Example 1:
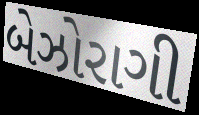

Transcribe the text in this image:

બેઝોરાગી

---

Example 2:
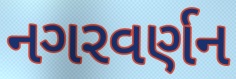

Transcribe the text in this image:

નગરવર્ણન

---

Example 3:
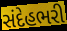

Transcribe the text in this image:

સંદેહભરી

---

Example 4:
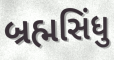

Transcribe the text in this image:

બ્રહ્મસિંધુ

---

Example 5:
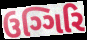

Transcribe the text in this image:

ઉગ્ગિરિ